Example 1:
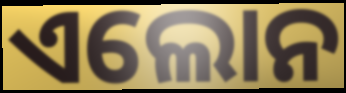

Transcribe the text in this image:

ଏଲୋନ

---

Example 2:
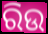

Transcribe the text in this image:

ରିଉ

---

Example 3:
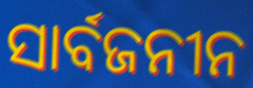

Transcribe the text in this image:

ସାର୍ବଜନୀନ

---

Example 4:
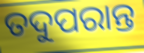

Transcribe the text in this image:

ତଦୁପରାନ୍ତ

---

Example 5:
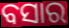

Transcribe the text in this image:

ବସାର